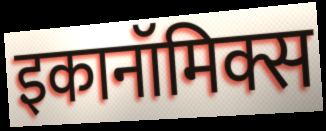
इकानॉमिक्स